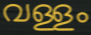
വള്ളം